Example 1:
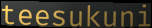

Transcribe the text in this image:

teesukuni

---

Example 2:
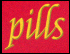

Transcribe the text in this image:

pills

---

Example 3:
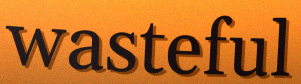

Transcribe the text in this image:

wasteful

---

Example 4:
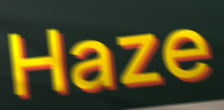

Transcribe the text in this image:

Haze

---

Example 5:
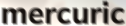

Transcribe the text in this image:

mercuric